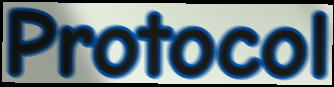
Protocol